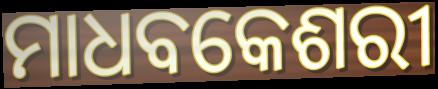
ମାଧବକେଶରୀ